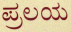
ಪ್ರಲಯ